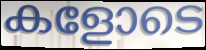
കളോടെ